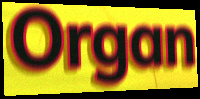
Organ